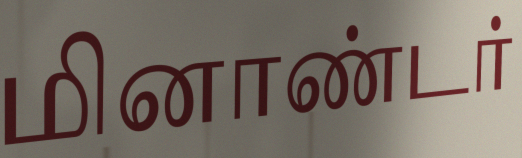
மினாண்டர்